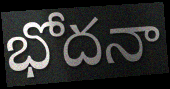
భోదనా